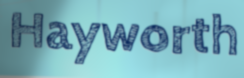
Hayworth